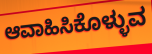
ಆವಾಹಿಸಿಕೊಳ್ಳುವ